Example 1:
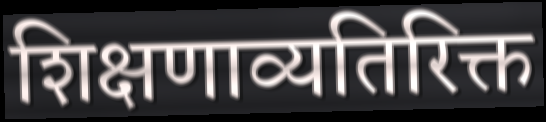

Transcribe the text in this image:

शिक्षणाव्यतिरिक्त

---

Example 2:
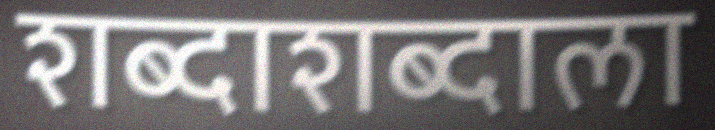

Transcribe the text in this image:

शब्दाशब्दाला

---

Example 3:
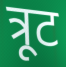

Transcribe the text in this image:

त्रूट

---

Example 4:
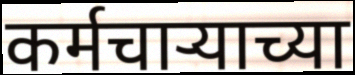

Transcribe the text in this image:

कर्मचाऱ्याच्या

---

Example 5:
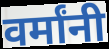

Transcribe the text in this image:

वर्मांनी